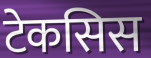
टेकसिस